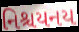
નિશ્ચયનય